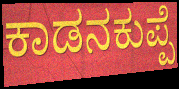
ಕಾಡನಕುಪ್ಪೆ